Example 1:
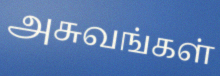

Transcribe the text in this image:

அசுவங்கள்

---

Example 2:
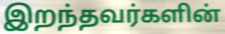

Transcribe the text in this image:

இறந்தவர்களின்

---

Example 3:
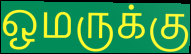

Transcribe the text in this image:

ஒமருக்கு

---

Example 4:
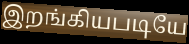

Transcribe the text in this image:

இறங்கியபடியே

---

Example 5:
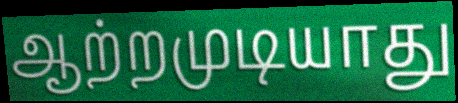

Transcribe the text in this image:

ஆற்றமுடியாது